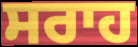
ਸਰਾਹ